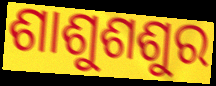
ଶାଶୁଶଶୁର